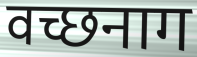
वच्छनाग